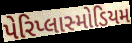
પેરિપ્લાસ્મોડિયમ